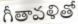
గీతావళితో